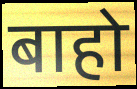
बाहो